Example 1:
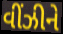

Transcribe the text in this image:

વીંઝીને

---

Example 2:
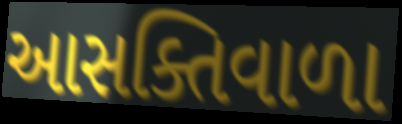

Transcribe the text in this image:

આસક્તિવાળા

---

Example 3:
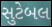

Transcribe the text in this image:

સુટેબલ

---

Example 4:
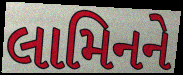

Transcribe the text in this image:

લામિનને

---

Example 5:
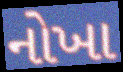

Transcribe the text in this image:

નોખા